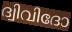
ദ്വിവിദോ